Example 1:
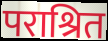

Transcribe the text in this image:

पराश्रित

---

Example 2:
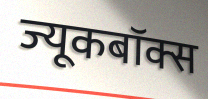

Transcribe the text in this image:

ज्यूकबॉक्स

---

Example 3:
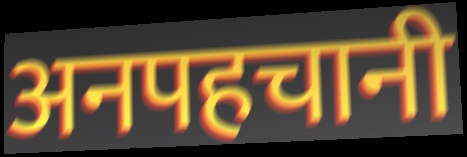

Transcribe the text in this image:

अनपहचानी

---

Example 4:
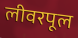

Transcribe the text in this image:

लीवरपूल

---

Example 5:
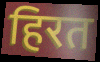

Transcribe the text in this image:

हिरत